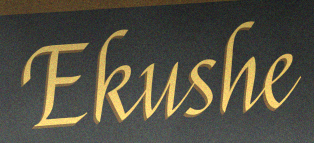
Ekushe